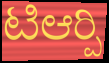
ಟಿಆರ್‍ಪಿ